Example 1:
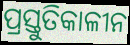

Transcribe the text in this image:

ପ୍ରସ୍ତୁତିକାଳୀନ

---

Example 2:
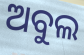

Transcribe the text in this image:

ଅବୁଲ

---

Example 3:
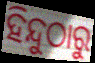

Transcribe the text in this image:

ହିନ୍ଦୁଠାରୁ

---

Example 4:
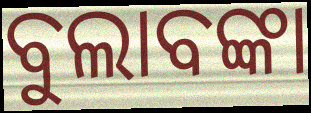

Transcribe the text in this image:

ବୁଲାବଙ୍କା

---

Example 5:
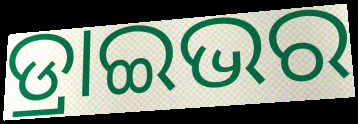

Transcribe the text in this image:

ଡ୍ରାଇଭର